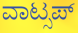
ವಾಟ್ಸಪ್